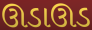
ઊડાઊડ